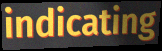
indicating